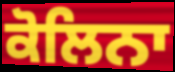
ਕੋਲਿਨਾ